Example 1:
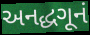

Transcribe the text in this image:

અનદ્ધગૂનં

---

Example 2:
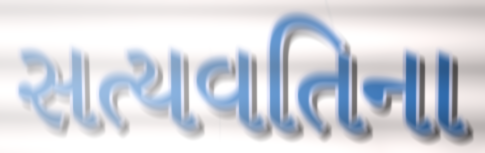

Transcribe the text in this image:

સત્યવતિના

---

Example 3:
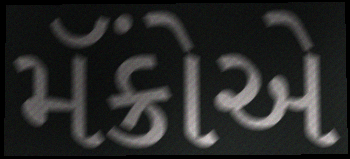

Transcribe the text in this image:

મૅંક્રોએ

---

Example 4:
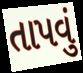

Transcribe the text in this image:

તાપવું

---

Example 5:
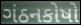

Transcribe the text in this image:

ગંઠનકોષો